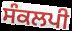
ਸੰਕਲਪੀ